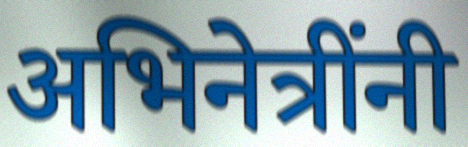
अभिनेत्रींनी